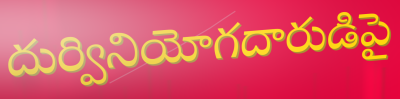
దుర్వినియోగదారుడిపై